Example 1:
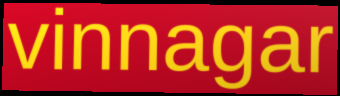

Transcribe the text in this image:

vinnagar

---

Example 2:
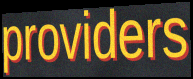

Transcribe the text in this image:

providers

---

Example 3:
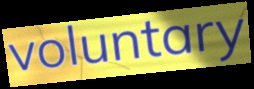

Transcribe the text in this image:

voluntary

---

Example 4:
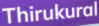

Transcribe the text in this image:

Thirukural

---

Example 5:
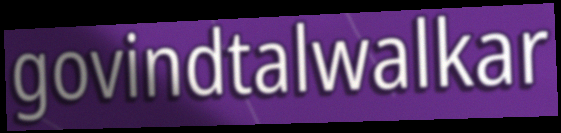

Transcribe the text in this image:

govindtalwalkar